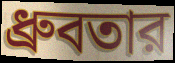
ধ্রুবতার